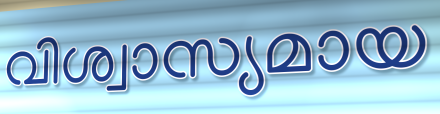
വിശ്വാസ്യമായ